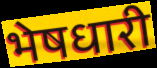
भेषधारी